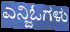
ಎನ್ಜಿಓಗಳು